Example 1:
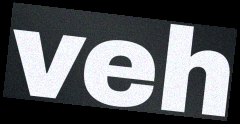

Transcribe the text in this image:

veh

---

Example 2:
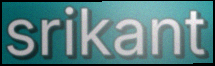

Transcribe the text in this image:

srikant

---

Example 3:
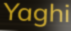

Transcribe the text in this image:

Yaghi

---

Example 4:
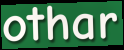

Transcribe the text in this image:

othar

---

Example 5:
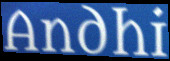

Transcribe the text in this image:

Andhi